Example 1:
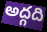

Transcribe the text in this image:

అద్గది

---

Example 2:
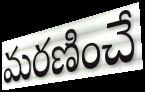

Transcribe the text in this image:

మరణించే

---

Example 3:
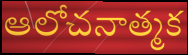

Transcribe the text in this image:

ఆలోచనాత్మక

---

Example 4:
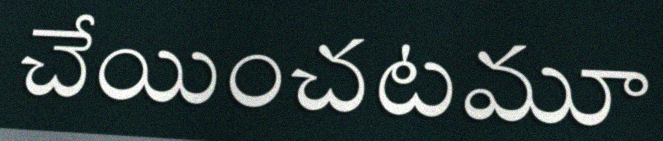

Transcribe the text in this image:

చేయించటమూ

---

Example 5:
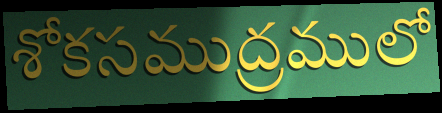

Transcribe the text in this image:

శోకసముద్రములో